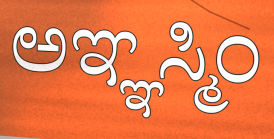
ಅಞ್ಞಸ್ಮಿಂ